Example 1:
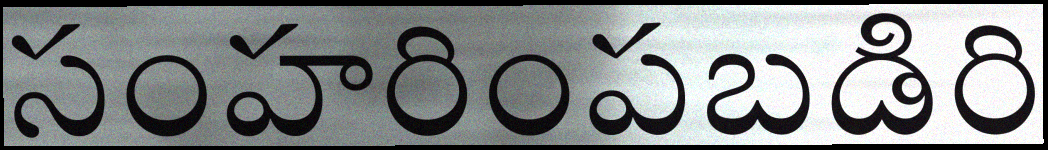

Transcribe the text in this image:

సంహరింపబడిరి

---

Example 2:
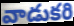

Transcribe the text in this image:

వాడుకరి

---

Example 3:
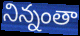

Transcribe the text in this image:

నిన్నంతా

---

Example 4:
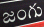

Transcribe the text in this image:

జంగు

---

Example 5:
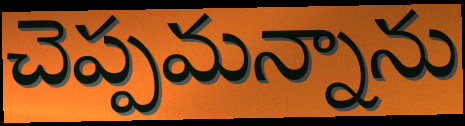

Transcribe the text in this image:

చెప్పమన్నాను